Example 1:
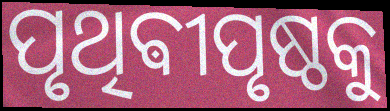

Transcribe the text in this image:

ପୃଥିଵୀପୃଷ୍ଠକୁ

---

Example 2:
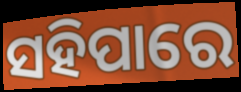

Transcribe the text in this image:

ସହିପାରେ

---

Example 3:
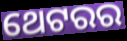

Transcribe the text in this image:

ଥେଟରର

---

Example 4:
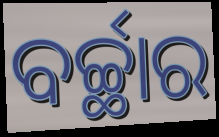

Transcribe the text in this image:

ବର୍ଚ୍ଛାର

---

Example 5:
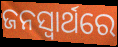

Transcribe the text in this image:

ଜନସ୍ୱାର୍ଥରେ